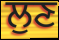
ਲੁਣ